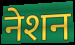
नेशन